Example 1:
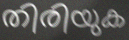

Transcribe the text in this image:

തിരിയുക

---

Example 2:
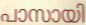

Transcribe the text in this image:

പാസായി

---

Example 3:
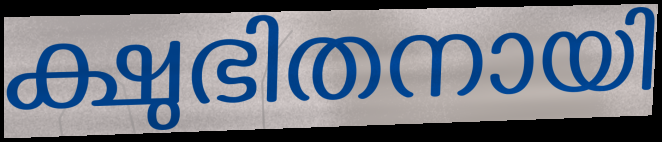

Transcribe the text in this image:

ക്ഷുഭിതനായി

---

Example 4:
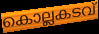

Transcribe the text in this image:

കൊല്ലകടവ്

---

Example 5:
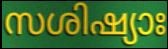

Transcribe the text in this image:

സശിഷ്യാഃ